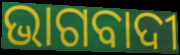
ଭାଗବାଦୀ